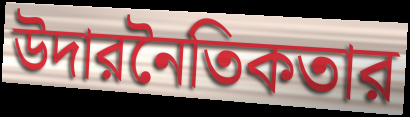
উদারনৈতিকতার